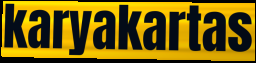
karyakartas